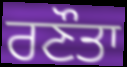
ਰਣੌਤਾ